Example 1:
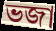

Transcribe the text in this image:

ভজা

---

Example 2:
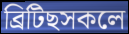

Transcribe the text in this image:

ব্ৰিটিছসকলে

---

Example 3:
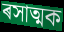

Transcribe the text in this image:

ৰসাত্মক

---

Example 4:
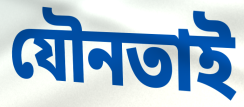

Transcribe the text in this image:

যৌনতাই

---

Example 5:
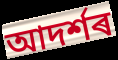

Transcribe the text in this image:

আদৰ্শৰ